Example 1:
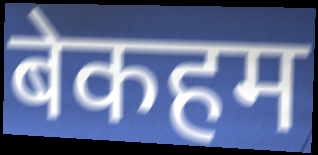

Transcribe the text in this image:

बेकहम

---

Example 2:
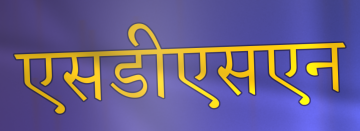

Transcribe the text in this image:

एसडीएसएन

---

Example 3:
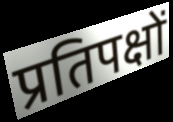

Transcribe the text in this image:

प्रतिपक्षों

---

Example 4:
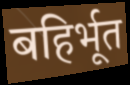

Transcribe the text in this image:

बहिर्भूत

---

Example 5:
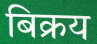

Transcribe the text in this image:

बिक्रय